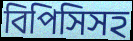
বিপিসিসহ